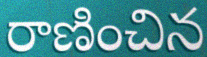
రాణించిన